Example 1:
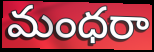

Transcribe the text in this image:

మంధరా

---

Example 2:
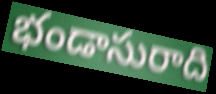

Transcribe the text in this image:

భండాసురాది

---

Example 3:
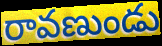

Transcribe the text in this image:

రావణుండు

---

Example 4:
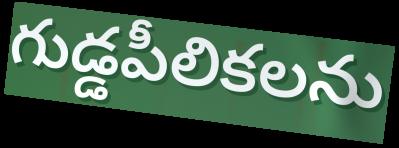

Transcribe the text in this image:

గుడ్డపీలికలను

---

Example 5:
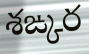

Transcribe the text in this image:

శఙ్కర